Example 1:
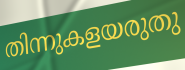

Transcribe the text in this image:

തിന്നുകളയരുതു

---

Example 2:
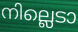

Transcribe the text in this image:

നില്ലെടാ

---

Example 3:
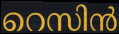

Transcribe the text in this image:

റെസിൻ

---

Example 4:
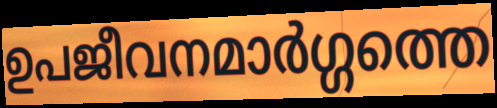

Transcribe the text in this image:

ഉപജീവനമാർഗ്ഗത്തെ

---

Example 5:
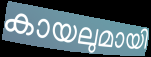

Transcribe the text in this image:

കായലുമായി